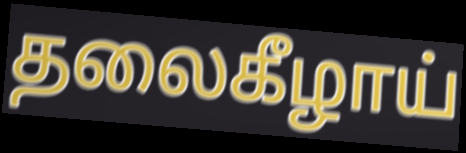
தலைகீழாய்